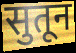
सुतून